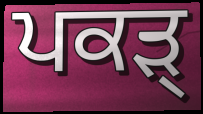
ਪਕੜ੍